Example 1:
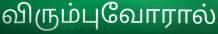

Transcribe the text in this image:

விரும்புவோரால்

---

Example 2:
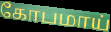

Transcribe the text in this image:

கோபமாய்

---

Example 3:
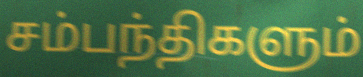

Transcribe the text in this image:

சம்பந்திகளும்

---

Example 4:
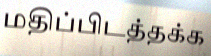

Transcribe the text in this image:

மதிப்பிடத்தக்க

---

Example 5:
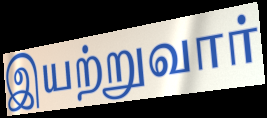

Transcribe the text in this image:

இயற்றுவார்